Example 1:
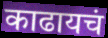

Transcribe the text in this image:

काढायचं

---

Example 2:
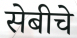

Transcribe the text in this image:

सेबीचे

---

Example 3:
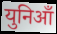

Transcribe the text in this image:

युनिआँ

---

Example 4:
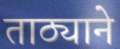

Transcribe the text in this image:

ताठ्याने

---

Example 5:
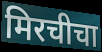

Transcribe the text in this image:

मिरचीचा